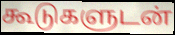
கூடுகளுடன்